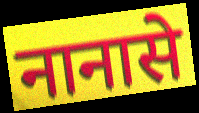
नानासे